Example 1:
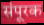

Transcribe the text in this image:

संपूरक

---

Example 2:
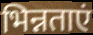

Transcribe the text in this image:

भिन्नताएं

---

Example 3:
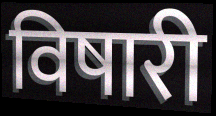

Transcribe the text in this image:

विषारी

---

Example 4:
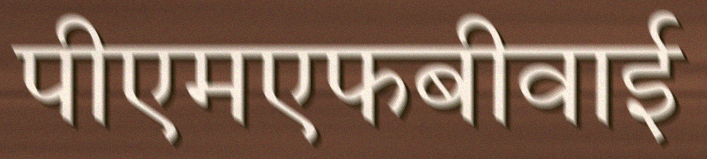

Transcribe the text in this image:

पीएमएफबीवाई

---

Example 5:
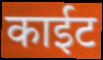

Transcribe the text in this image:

काईट